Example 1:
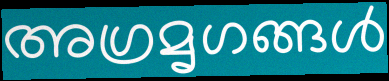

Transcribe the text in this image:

അഗ്രമൃഗങ്ങൾ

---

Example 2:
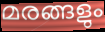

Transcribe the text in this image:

മരങ്ങളും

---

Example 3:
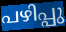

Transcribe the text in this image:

പഴിപ്പു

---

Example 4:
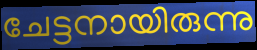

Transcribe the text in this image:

ചേട്ടനായിരുന്നു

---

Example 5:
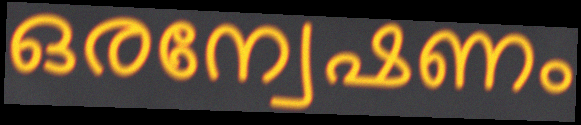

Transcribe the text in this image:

ഒരന്വേഷണം